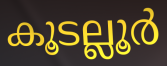
കൂടല്ലൂർ